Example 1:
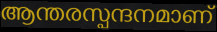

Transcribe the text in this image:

ആന്തരസ്പന്ദനമാണ്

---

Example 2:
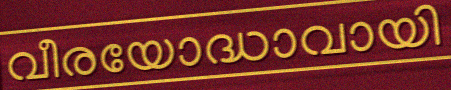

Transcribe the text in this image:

വീരയോദ്ധാവായി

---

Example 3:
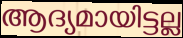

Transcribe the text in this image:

ആദ്യമായിട്ടല്ല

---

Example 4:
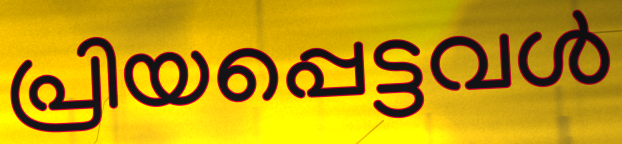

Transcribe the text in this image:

പ്രിയപ്പെട്ടവൾ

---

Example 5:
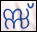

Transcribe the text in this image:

സ്സ്